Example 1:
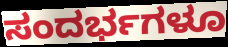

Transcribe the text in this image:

ಸಂದರ್ಭಗಳೂ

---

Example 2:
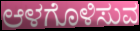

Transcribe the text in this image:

ಆಳಗೊಳಿಸುವ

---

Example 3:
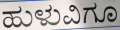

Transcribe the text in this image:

ಹುಳುವಿಗೂ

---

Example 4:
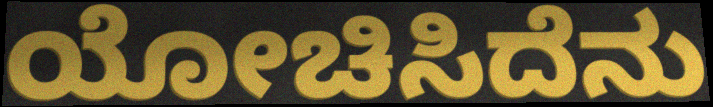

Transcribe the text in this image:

ಯೋಚಿಸಿದೆನು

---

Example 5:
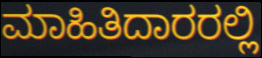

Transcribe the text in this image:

ಮಾಹಿತಿದಾರರಲ್ಲಿ